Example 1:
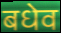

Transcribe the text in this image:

बधेव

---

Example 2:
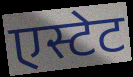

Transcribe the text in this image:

एस्टेट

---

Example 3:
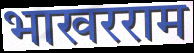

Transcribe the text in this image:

भाखरराम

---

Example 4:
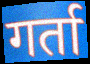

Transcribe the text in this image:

गर्ता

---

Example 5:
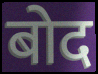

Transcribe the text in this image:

बोद